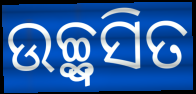
ଉଚ୍ଛ୍ୱସିତ